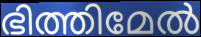
ഭിത്തിമേൽ